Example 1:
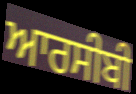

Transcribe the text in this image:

ਆਰਸੀਬੀ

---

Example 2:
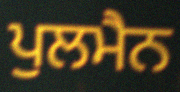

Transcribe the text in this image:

ਪੁਲਮੈਨ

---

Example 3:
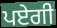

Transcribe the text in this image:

ਪਏਗੀ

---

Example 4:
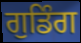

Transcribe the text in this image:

ਗੁਡਿੰਗ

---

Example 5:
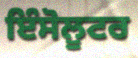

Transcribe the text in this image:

ਇੰਸੋਲੂਟਰ